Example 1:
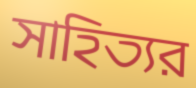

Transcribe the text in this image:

সাহিত্যর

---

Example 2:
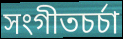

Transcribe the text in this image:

সংগীতচর্চা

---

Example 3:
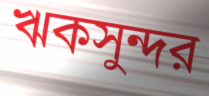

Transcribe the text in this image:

ঋকসুন্দর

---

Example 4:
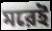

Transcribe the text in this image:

মরেই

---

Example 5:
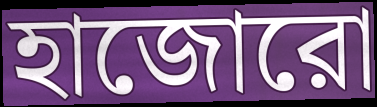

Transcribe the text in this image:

হাজোরো